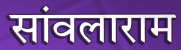
सांवलाराम